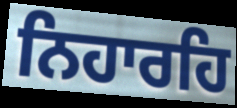
ਨਿਹਾਰਹਿ